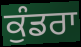
ਕੁੰਡਰਾ